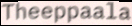
Theeppaala